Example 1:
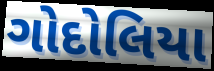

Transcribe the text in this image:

ગોદોલિયા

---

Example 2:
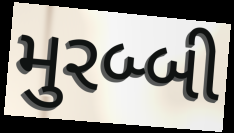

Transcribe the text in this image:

મુરબ્બી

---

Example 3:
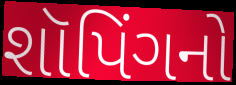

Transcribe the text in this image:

શૉપિંગનો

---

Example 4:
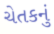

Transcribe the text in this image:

ચેતકનું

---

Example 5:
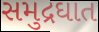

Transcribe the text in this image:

સમુદ્રઘાત